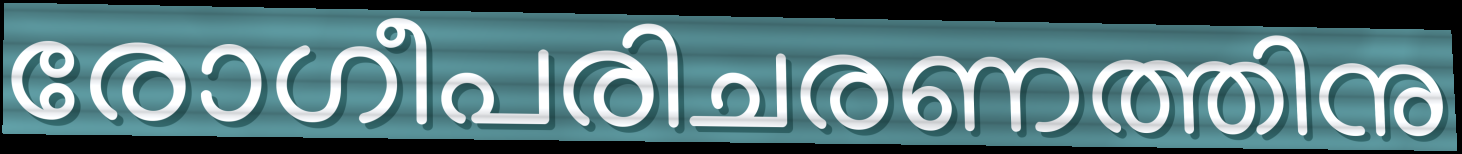
രോഗീപരിചരണത്തിനു